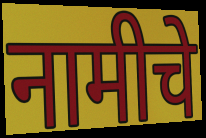
नामीचे